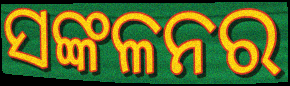
ସଙ୍କଳନର